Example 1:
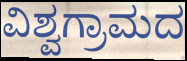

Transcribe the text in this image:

ವಿಶ್ವಗ್ರಾಮದ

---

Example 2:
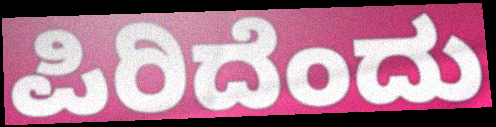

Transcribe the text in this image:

ಪಿರಿದೆಂದು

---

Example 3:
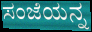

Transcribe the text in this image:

ಸಂಜೆಯನ್ನ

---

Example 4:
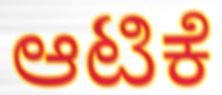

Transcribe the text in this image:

ಆಟಿಕೆ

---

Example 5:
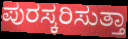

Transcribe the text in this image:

ಪುರಸ್ಕರಿಸುತ್ತಾ